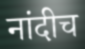
नांदीच